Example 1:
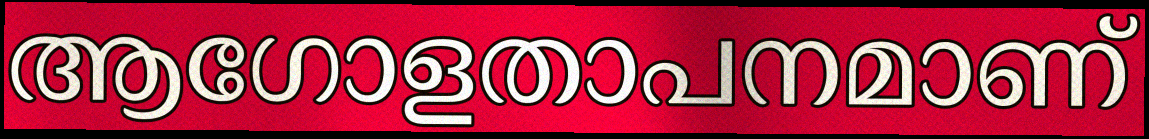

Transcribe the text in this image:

ആഗോളതാപനമാണ്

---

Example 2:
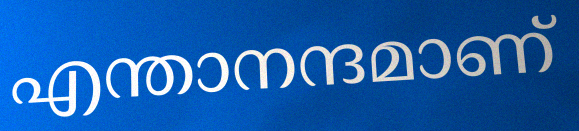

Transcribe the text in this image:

എന്താനന്ദമാണ്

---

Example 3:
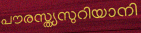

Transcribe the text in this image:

പൗരസ്ത്യസുറിയാനി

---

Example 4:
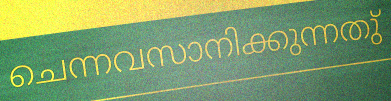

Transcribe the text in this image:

ചെന്നവസാനിക്കുന്നതു്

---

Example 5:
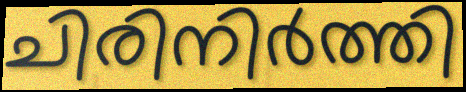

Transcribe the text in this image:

ചിരിനിർത്തി